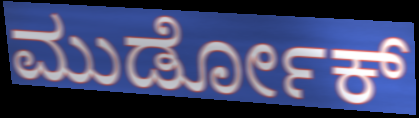
ಮುರ್ಡೋಕ್